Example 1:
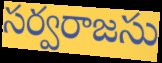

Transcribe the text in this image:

సర్వరాజసు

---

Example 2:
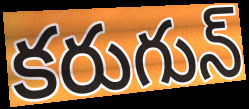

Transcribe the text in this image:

కరుగున్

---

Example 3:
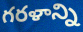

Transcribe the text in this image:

గరళాన్ని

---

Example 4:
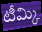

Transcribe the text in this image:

టీమ్కి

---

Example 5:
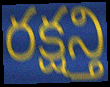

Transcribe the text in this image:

రక్షన్తి